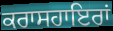
ਕਰਾਸਹਾਇਰਾਂ